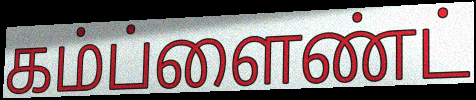
கம்ப்ளைண்ட்